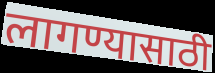
लागण्यासाठी